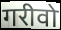
गरीवो